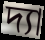
দ্যা